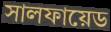
সালফায়েড